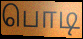
பொடி